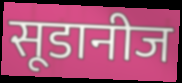
सूडानीज